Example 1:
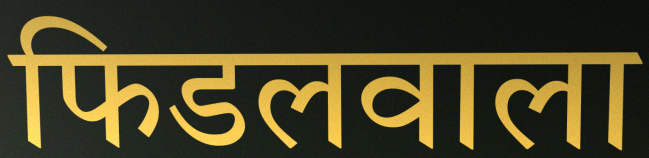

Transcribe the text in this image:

फिडलवाला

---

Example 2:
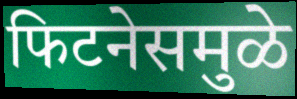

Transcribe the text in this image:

फिटनेसमुळे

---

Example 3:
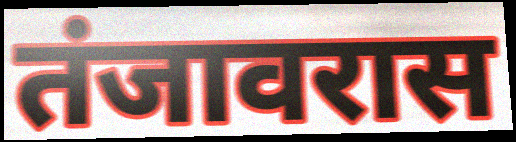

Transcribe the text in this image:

तंजावरास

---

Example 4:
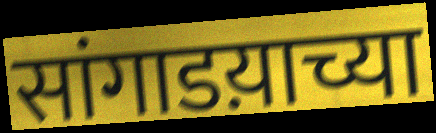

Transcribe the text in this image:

सांगाडय़ाच्या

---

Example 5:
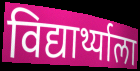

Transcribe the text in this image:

विद्यार्थ्याला